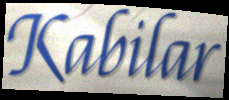
Kabilar